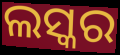
ଲସ୍କର